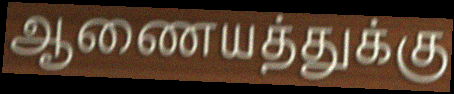
ஆணையத்துக்கு